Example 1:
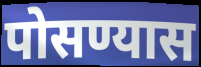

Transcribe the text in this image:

पोसण्यास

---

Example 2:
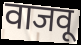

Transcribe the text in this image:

वाजवू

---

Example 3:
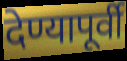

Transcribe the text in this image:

देण्यापूर्वी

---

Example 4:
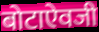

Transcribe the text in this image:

बोटाऐवजी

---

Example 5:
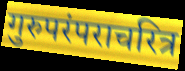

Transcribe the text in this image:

गुरुपरंपराचरित्र